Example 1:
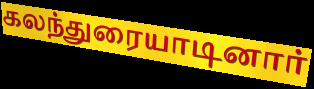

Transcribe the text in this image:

கலந்துரையாடினார்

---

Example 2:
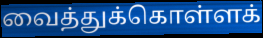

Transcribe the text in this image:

வைத்துக்கொள்ளக்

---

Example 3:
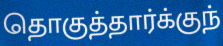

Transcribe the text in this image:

தொகுத்தார்க்குந்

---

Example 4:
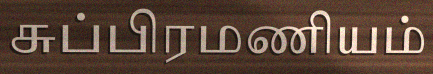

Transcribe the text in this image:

சுப்பிரமணியம்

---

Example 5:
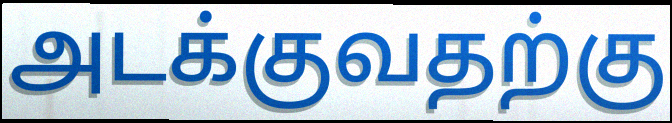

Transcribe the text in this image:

அடக்குவதற்கு